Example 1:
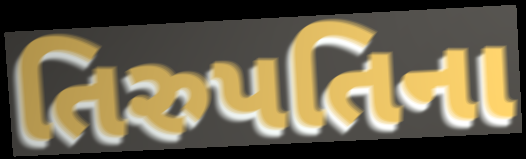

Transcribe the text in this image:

તિરુપતિના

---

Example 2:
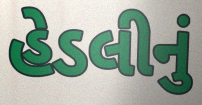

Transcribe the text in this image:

હેડલીનું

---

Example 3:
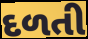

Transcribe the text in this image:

દળતી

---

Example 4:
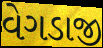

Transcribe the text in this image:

વેગડાજી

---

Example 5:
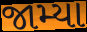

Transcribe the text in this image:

જામ્યા